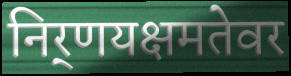
निर्णयक्षमतेवर